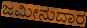
ಜಮೀನುದಾರ